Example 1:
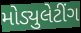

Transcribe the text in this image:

મોડ્યુલેટીંગ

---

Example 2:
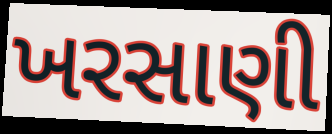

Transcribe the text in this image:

ખરસાણી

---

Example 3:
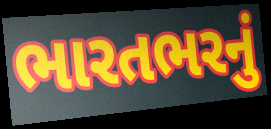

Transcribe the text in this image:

ભારતભરનું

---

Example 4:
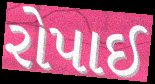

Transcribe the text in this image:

રોપાઈ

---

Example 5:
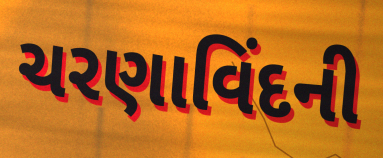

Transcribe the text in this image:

ચરણાવિંદની